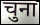
चुना